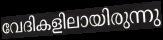
വേദികളിലായിരുന്നു